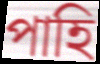
পাহি